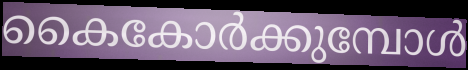
കൈകോർക്കുമ്പോൾ